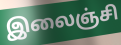
இலைஞ்சி